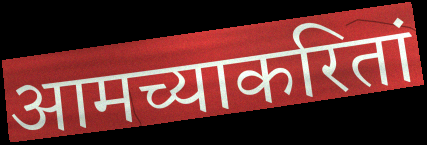
आमच्याकरितां